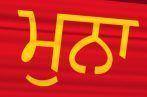
ਮੁਨਾ